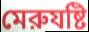
মেরুযষ্টি